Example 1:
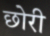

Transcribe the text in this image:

छोरी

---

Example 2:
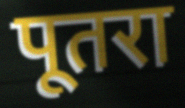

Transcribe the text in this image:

पूतरा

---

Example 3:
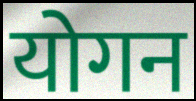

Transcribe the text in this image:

योगन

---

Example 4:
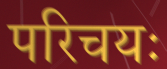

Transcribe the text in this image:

परिचयः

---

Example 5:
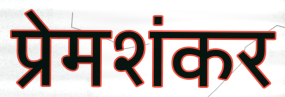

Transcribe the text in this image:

प्रेमशंकर